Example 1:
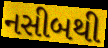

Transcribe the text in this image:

નસીબથી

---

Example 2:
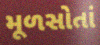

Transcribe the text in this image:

મૂળસોતાં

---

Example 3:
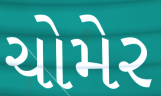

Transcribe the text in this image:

ચોમેર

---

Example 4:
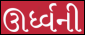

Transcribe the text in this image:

ઊર્ધ્વની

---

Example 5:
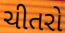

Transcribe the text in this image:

ચીતરો